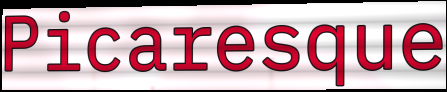
Picaresque